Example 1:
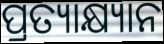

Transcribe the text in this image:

ପ୍ରତ୍ୟାକ୍ଷ୍ୟାନ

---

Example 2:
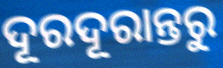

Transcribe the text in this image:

ଦୂରଦୂରାନ୍ତରୁ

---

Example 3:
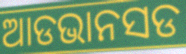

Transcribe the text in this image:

ଆଡଭାନସଡ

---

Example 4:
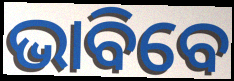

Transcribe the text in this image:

ଭାବିବେ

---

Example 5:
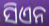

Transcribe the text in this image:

ସିଏନ